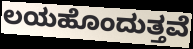
ಲಯಹೊಂದುತ್ತವೆ